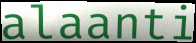
alaanti